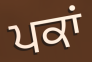
ਪਕਾਂ